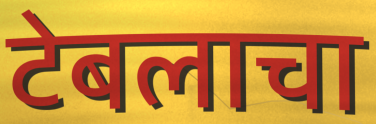
टेबलाचा